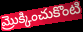
మ్రొక్కించుకొంటి